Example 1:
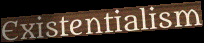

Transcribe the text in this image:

Existentialism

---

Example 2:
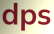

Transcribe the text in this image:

dps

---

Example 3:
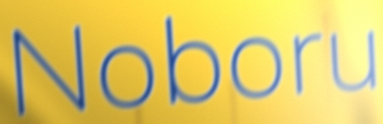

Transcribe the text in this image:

Noboru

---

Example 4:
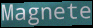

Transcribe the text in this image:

Magnete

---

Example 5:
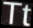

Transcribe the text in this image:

Tt